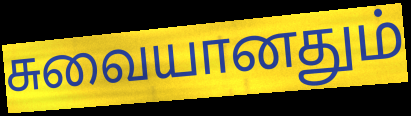
சுவையானதும்